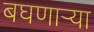
बघणाऱ्या